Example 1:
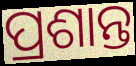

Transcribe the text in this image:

ପ୍ରଶାନ୍ତ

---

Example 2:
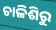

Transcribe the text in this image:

ଚାଳିଶିରୁ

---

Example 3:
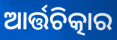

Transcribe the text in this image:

ଆର୍ତ୍ତଚିତ୍କାର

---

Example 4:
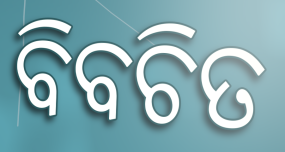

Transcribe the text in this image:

ବିବଚିତ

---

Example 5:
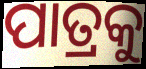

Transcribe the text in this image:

ପାତ୍ରକୁ